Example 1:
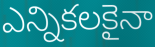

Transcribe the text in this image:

ఎన్నికలకైనా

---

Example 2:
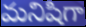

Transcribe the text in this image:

మనిషిగా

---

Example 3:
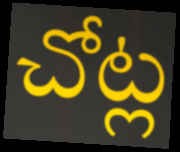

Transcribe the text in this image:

చోట్ల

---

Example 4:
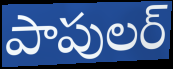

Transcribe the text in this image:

పాపులర్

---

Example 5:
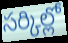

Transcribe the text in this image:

సర్కిల్లో